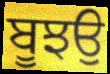
ਬੂਝਉ